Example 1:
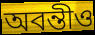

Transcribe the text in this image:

অবন্তীও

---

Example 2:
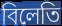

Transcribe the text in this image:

বিলেতি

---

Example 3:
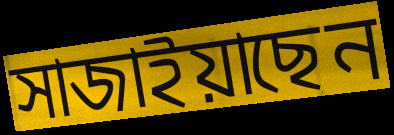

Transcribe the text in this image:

সাজাইয়াছেন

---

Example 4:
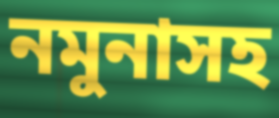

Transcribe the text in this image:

নমুনাসহ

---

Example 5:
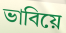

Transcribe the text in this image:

ভাবিয়ে